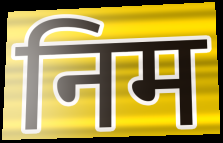
निम